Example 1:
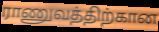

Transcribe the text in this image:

ராணுவத்திற்கான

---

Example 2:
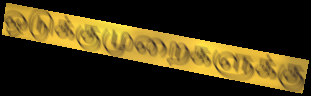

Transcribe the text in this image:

ஒடுக்குமுறைகளுக்கு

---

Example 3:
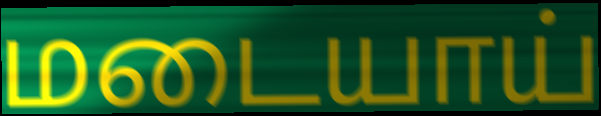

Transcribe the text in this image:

மடையாய்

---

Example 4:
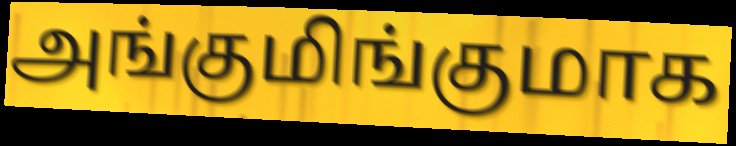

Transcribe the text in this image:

அங்குமிங்குமாக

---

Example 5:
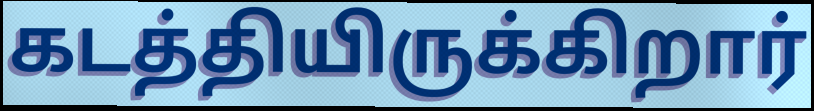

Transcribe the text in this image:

கடத்தியிருக்கிறார்